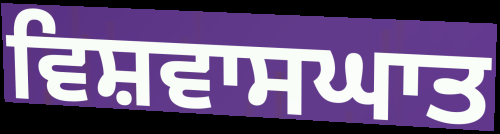
ਵਿਸ਼ਵਾਸਘਾਤ